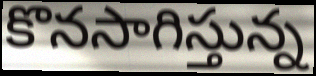
కొనసాగిస్తున్న